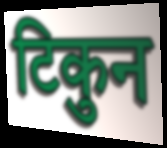
टिकुन